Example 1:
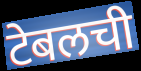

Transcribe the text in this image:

टेबलची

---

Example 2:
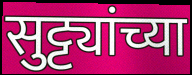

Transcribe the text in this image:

सुट्ट्यांच्या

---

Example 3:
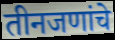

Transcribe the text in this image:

तीनजणांचे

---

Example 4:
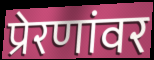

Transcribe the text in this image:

प्रेरणांवर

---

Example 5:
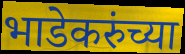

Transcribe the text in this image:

भाडेकरुंच्या